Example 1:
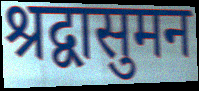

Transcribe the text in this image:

श्रद्वासुमन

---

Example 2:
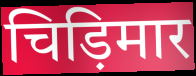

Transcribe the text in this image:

चिड़िमार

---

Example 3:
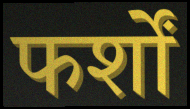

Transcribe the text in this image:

फर्शों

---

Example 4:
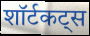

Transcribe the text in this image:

शॉर्टकट्स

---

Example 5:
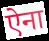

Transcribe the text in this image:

ऐना